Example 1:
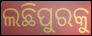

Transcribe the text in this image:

ଲଛିପୁରକୁ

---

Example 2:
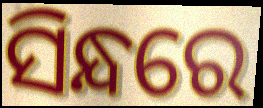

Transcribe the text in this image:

ସିନ୍ଧରେ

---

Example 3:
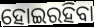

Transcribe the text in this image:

ହୋଇରହିବା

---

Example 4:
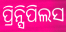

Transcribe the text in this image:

ପ୍ରିନ୍ସିପିଲସ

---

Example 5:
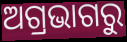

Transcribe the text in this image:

ଅଗ୍ରଭାଗରୁ